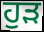
ਹੁੜ